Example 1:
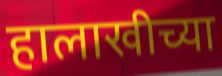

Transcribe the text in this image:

हालाखीच्या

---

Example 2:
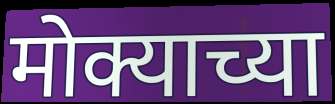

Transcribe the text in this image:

मोक्याच्या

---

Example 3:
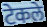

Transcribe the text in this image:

टेकले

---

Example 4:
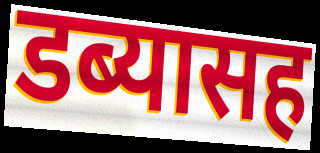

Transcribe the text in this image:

डब्यासह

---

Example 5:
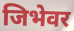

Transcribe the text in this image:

जिभेवर